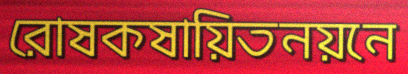
রোষকষায়িতনয়নে